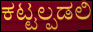
ಕಟ್ಟಲ್ಪಡಲಿ